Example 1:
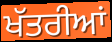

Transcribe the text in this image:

ਖੱਤਰੀਆਂ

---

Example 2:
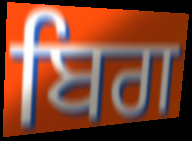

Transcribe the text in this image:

ਬਿਗ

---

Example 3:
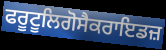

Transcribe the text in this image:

ਫਰੂਟੂਲਿਗੋਸੈਕਰਾਇਡਜ਼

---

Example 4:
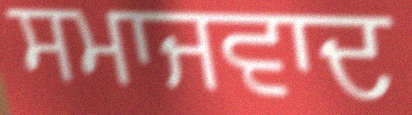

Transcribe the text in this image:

ਸਮਾਜਵਾਦ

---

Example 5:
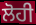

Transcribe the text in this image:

ਲੋਹੀ